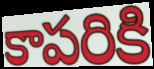
కాపరికి